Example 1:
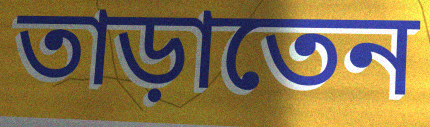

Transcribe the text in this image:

তাড়াতেন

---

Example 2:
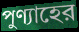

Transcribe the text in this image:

পুণ্যাহের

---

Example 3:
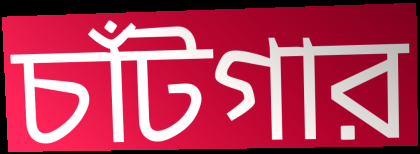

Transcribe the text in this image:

চাঁটগার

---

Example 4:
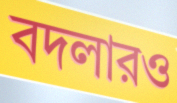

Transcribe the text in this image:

বদলারও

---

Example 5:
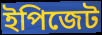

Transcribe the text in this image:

ইপিজেট